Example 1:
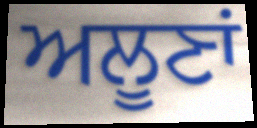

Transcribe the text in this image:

ਅਲੂਣਾਂ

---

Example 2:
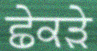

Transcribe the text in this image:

ਛੇਕੜੇ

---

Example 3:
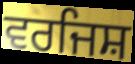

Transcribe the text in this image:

ਵਰਜਿਸ਼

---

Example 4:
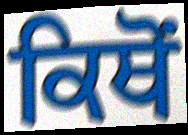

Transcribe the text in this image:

ਕਿਥੋਂ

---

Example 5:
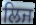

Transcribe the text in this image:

ਲਿਜ